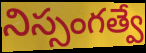
నిస్సంగత్వే